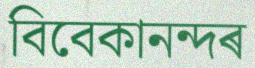
বিবেকানন্দৰ